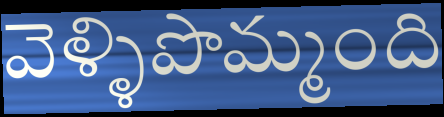
వెళ్ళిపొమ్మంది